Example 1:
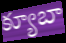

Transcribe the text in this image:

క్యూబా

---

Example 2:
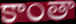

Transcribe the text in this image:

కాంతా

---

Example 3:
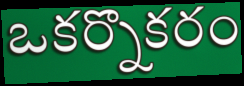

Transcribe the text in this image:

ఒకర్నొకరం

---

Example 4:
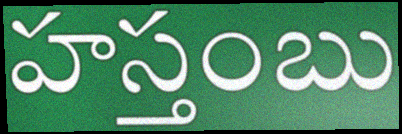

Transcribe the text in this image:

హస్తంబు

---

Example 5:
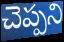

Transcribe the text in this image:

చెప్పని